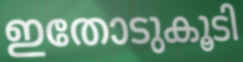
ഇതോടുകൂടി